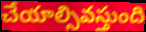
చేయాల్సివస్తుంది